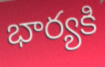
భార్యకి